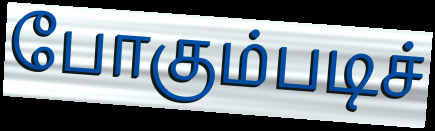
போகும்படிச்